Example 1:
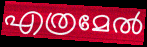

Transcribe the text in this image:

എത്രമേൽ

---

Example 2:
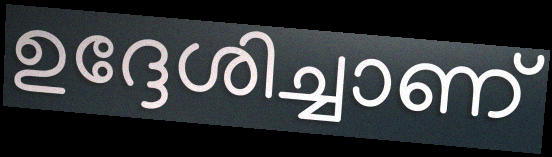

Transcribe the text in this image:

ഉദ്ദേശിച്ചാണ്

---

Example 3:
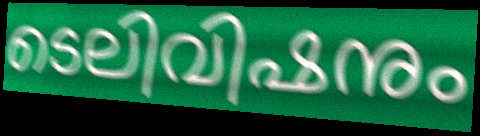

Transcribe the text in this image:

ടെലിവിഷനും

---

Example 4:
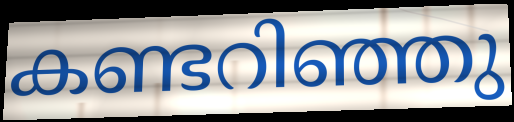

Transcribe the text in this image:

കണ്ടറിഞ്ഞു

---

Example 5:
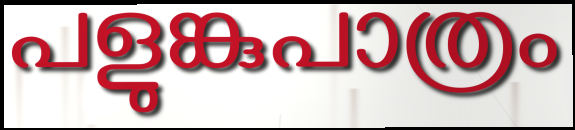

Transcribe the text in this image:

പളുങ്കുപാത്രം